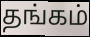
தங்கம்